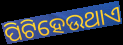
ପିଟିହେଉଥାଏ